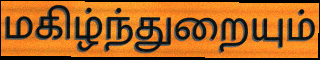
மகிழ்ந்துறையும்